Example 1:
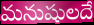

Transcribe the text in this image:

మనుషులదే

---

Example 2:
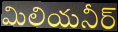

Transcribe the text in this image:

మిలియనీర్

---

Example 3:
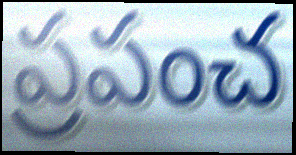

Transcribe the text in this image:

ప్రపంచ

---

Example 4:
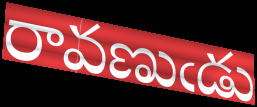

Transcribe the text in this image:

రావణుఁడు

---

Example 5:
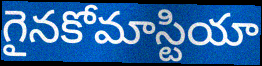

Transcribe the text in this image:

గైనకోమాస్టియా